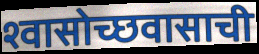
श्वासोच्छवासाची